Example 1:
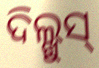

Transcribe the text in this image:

ଦିଲ୍ଖୁସ୍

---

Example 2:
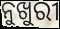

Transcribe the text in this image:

ନୁଖୁରୀ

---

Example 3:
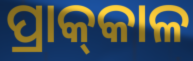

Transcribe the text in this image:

ପ୍ରାକ୍‌କାଳ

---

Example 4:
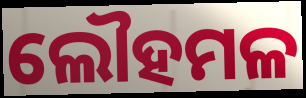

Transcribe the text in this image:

ଲୌହମଳ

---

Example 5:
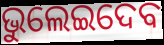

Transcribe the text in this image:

ଭୁଲେଇଦେବ